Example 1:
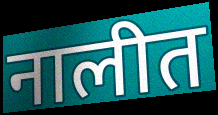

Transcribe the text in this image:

नालीत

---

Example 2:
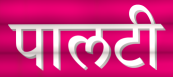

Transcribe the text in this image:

पालटी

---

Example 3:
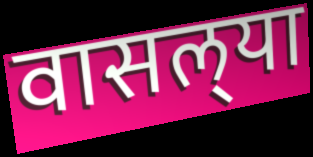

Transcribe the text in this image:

वासल्या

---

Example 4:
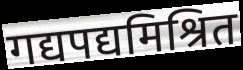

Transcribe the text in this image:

गद्यपद्यमिश्रित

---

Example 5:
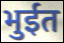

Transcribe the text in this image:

भुईत